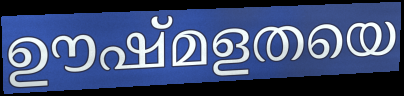
ഊഷ്മളതയെ